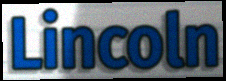
Lincoln